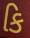
કિ